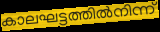
കാലഘട്ടത്തിൽനിന്ന്